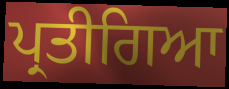
ਪ੍ਰਤੀਗਿਆ